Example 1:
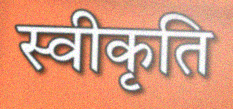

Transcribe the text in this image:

स्‍वीकृति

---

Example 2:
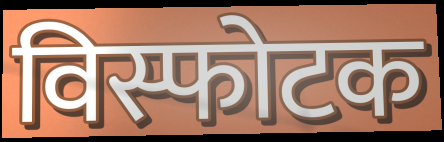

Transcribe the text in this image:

विस्फोटक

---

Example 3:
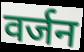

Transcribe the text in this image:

वर्जन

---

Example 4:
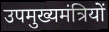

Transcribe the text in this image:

उपमुख्यमंत्रियों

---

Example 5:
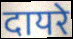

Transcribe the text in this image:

दायरे